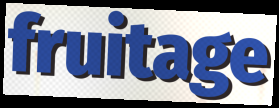
fruitage